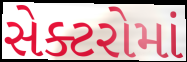
સેક્ટરોમાં